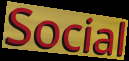
Social